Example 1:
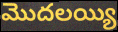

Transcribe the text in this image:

మొదలయ్యి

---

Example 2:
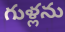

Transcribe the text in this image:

గుళ్లను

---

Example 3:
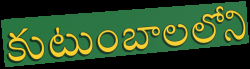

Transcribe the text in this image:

కుటుంబాలలోని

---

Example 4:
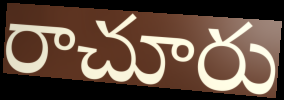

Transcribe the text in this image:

రాచూరు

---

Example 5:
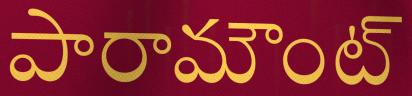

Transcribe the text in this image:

పారామౌంట్